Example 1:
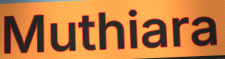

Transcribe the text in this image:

Muthiara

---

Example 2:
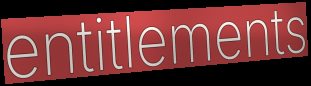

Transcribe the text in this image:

entitlements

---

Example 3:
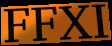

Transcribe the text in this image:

FFXI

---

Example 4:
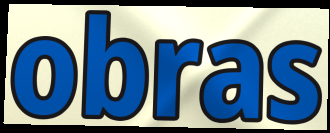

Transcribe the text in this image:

obras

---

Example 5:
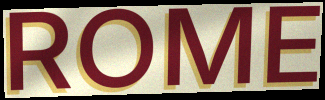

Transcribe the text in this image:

ROME